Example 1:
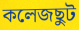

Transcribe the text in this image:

কলেজছুট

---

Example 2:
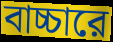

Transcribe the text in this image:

বাচ্চারে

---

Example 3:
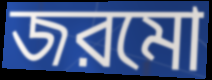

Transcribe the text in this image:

জরমো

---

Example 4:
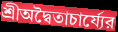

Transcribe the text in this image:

শ্রীঅদ্বৈতাচার্য্যের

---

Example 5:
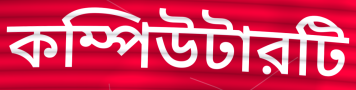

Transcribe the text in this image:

কম্পিউটারটি